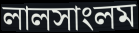
লালসাংলম